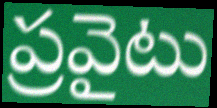
ప్రవైటు